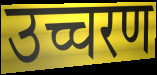
उच्चरण